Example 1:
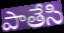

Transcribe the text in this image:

పాతేసి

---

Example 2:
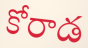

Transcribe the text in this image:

కోరాడ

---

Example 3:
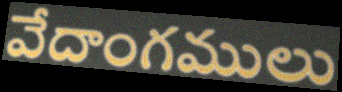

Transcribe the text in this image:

వేదాంగములు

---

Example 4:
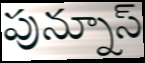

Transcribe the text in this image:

పున్నూస్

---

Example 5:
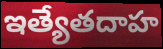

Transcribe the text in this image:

ఇత్యేతదాహ